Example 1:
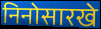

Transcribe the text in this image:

निनोसारखे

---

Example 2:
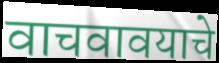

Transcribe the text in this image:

वाचवावयाचे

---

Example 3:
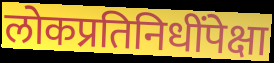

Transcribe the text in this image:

लोकप्रतिनिधींपेक्षा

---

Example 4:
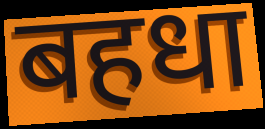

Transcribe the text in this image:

बहधा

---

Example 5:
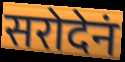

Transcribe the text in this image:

सरोदेनं